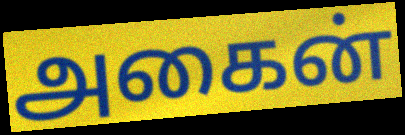
அகைன்